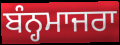
ਬੰਨ੍ਹਮਾਜਰਾ